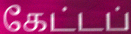
கேட்டப்